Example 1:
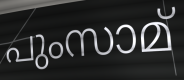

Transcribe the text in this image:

പുംസാമ്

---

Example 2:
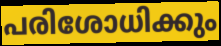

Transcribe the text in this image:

പരിശോധിക്കും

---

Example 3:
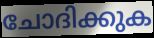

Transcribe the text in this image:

ചോദിക്കുക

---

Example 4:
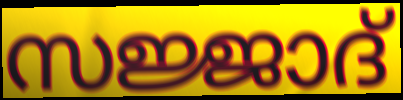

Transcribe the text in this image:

സജ്ജാദ്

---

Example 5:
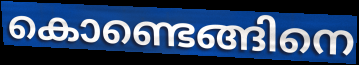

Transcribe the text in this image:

കൊണ്ടെങ്ങിനെ